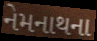
નેમનાથના